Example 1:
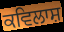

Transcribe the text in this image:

ਕਵਿਲਾਸ਼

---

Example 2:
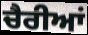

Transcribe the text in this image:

ਚੈਰੀਆਂ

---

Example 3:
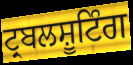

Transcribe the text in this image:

ਟ੍ਰਬਲਸ਼ੂਟਿੰਗ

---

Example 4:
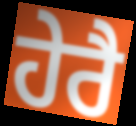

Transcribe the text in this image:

ਹੇਰੈ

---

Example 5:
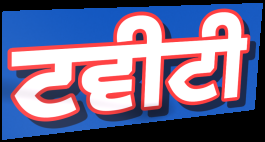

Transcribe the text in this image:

ਟਵੀਟੀ